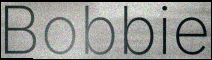
Bobbie